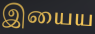
இயைய